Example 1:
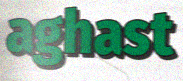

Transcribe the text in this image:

aghast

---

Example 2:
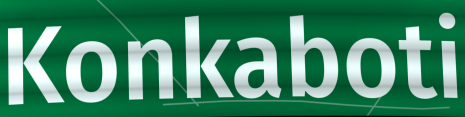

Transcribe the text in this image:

Konkaboti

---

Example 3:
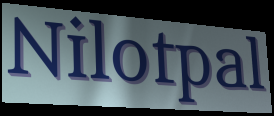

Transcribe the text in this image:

Nilotpal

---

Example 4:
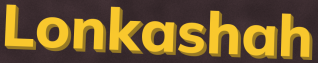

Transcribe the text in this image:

Lonkashah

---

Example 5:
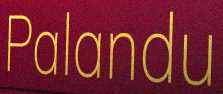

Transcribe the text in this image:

Palandu